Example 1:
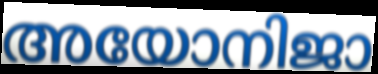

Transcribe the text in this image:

അയോനിജാ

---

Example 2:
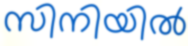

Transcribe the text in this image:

സിനിയിൽ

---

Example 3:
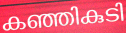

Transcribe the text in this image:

കഞ്ഞികുടി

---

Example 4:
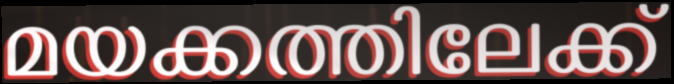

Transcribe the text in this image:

മയക്കത്തിലേക്ക്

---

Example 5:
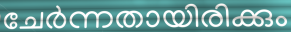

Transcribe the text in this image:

ചേർന്നതായിരിക്കും